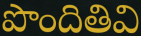
పొందితివి